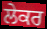
ਲੇਕਰ